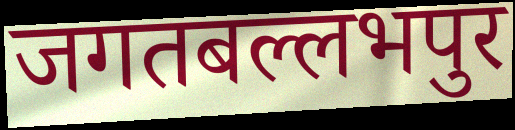
जगतबल्लभपुर